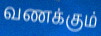
வணக்கும்